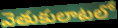
వెతుకులాటలో